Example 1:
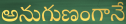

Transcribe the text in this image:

అనుగుణంగానే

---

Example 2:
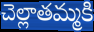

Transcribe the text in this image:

చెల్లాతమ్మకి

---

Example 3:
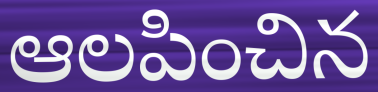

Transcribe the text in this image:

ఆలపించిన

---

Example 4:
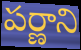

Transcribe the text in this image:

పర్ణాని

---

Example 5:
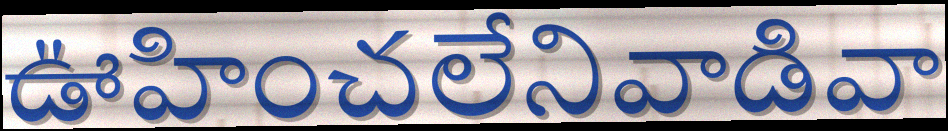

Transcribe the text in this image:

ఊహించలేనివాడివా